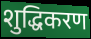
शुद्धिकरण